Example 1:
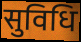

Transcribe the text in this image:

सुविधि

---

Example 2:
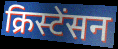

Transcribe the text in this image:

क्रिस्टेंसन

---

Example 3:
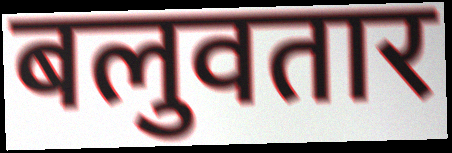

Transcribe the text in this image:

बलुवतार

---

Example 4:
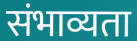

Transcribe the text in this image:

संभाव्यता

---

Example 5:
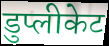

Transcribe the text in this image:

डुप्‍लीकेट